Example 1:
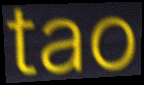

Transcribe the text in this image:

tao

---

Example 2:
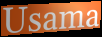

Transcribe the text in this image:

Usama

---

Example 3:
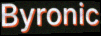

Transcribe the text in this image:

Byronic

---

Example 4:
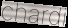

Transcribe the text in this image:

chardi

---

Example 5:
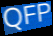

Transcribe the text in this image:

QFP